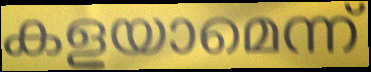
കളയാമെന്ന്